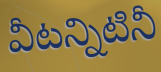
వీటన్నిటినీ